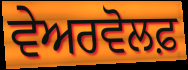
ਵੇਅਰਵੋਲਫ਼